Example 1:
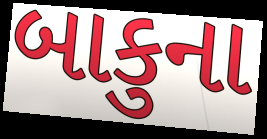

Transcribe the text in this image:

બાકુના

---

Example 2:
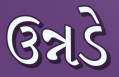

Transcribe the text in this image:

ઉન્નડે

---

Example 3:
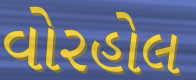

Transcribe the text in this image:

વોરહોલ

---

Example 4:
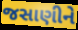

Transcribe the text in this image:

જસાણીને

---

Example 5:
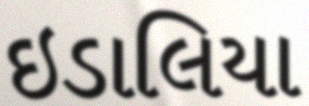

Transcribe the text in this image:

ઇડાલિયા